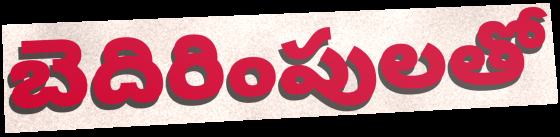
బెదిరింపులతో